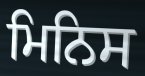
ਮਿਨਿਸ